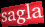
sagla